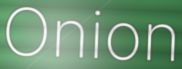
Onion